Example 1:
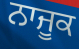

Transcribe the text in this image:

ਨਾਜੂਕ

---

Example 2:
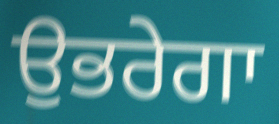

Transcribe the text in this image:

ਉਭਰੇਗਾ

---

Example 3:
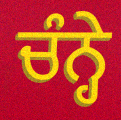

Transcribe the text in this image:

ਚੰਨ੍ਹੇ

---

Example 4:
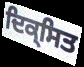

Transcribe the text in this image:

ਦਿਕ੍ਸਿਤ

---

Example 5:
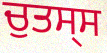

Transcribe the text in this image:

ਚੁਤਸ੍ਸ